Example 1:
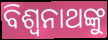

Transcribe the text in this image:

ବିଶ୍ବନାଥଙ୍କୁ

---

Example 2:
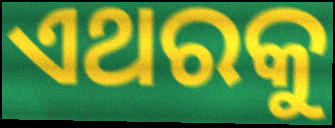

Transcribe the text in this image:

ଏଥରକୁ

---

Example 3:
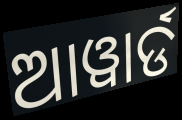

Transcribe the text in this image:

ଆୱାର୍ଡ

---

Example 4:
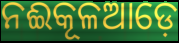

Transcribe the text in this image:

ନଈକୂଳଆଡ଼େ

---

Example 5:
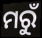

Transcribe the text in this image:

ମରୁଁ